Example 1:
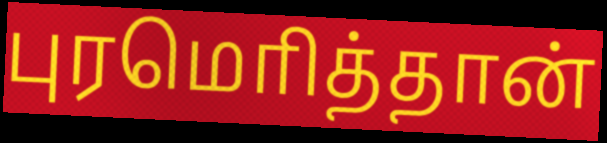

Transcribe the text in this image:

புரமெரித்தான்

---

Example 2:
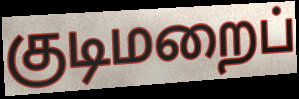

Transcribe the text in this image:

குடிமறைப்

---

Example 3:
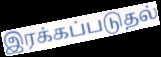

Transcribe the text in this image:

இரக்கப்படுதல்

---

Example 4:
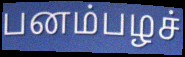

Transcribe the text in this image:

பனம்பழச்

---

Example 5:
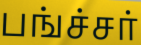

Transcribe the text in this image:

பங்ச்சர்